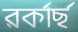
ৱৰ্কাৰ্ছ